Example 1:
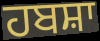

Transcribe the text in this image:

ਹਬਸ਼ਾ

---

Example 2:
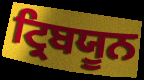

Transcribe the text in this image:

ਟ੍ਰਿਬਯੂਨ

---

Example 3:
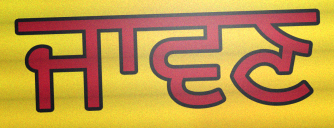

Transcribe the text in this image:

ਜਾਵਣ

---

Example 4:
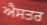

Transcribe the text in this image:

ਐਸਤਰ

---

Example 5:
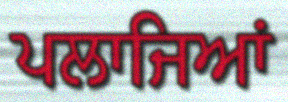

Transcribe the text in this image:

ਪਲਾਜਿਆਂ